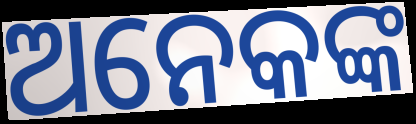
ଅନେକଙ୍କ